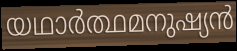
യഥാർത്ഥമനുഷ്യൻ